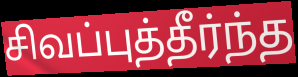
சிவப்புத்தீர்ந்த